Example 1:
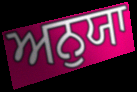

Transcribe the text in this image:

ਅਨੁਯਾ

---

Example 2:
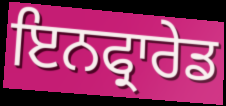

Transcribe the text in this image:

ਇਨਫ੍ਰਾਰੇਡ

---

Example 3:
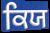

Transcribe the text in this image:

ਕਿਯ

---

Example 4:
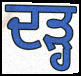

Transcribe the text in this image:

ਦੜ੍ਹ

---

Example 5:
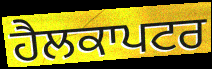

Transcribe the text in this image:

ਹੈਲਕਾਪਟਰ